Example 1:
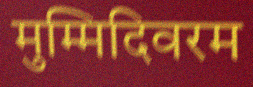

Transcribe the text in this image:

मुम्मिदिवरम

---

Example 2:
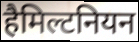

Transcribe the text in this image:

हैमिल्टनियन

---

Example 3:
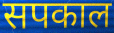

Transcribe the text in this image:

सपकाल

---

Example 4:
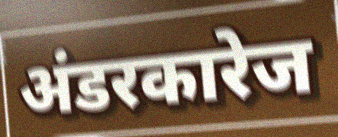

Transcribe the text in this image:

अंडरकारेज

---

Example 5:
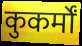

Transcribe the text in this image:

कुकर्मों